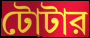
টোটার